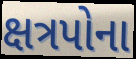
ક્ષત્રપોના